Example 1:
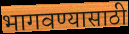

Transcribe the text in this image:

भागवण्यासाठी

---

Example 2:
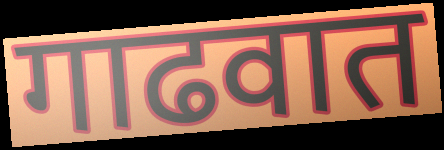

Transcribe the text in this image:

गाढवात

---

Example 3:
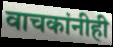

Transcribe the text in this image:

वाचकांनीही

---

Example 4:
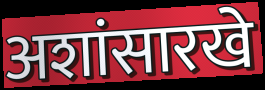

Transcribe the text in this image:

अशांसारखे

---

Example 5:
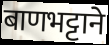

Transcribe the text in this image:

बाणभट्टाने